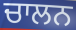
ਚਾਲਨ